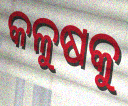
କଳୁଷକୁ